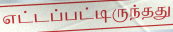
எட்டப்பட்டிருந்தது